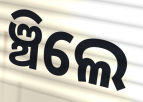
ଞ୍ଚିଲେ